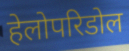
हेलोपरिडोल